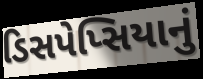
ડિસપેપ્સિયાનું